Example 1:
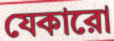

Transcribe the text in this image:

যেকারো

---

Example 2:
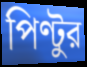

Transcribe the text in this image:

পিণ্টুর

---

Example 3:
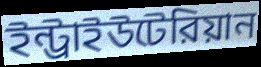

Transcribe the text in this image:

ইন্ট্রাইউটেরিয়ান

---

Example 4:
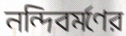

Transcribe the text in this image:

নন্দিবর্মণের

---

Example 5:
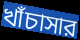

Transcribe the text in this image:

খাঁচাসার